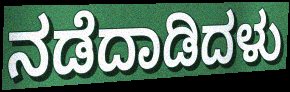
ನಡೆದಾಡಿದಳು